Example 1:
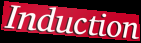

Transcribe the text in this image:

Induction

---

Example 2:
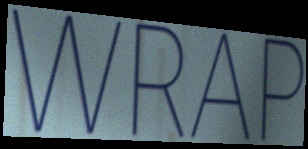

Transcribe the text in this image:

WRAP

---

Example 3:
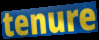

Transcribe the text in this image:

tenure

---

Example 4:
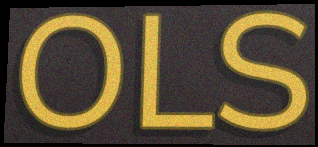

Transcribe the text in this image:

OLS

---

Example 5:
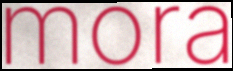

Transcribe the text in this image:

mora